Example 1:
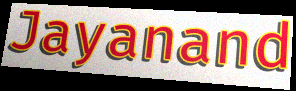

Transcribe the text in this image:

Jayanand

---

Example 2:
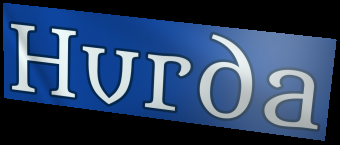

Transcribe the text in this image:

Hurda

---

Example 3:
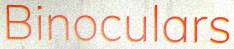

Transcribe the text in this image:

Binoculars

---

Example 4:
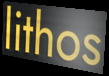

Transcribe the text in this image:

lithos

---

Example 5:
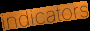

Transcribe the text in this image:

indicators